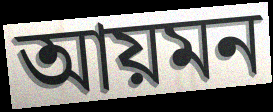
আয়মন